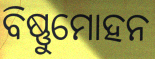
ବିଷ୍ଣୁମୋହନ